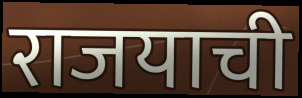
राजयाची